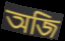
অজি